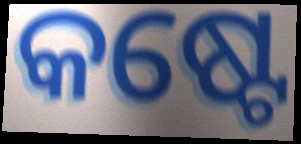
କଷ୍ଟେ